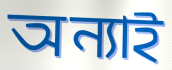
অন্যাই